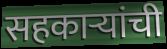
सहकाऱ्यांची